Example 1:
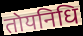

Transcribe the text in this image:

तोयनिधि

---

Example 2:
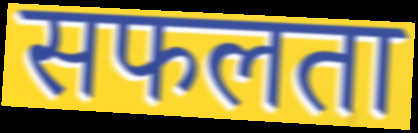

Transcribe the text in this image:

सफलता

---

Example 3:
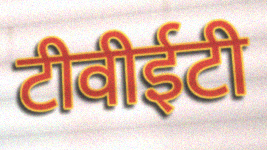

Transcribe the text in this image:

टीवीईटी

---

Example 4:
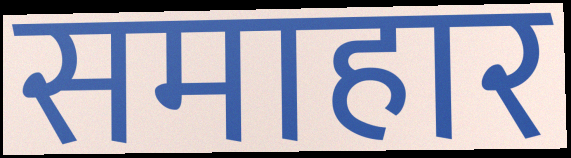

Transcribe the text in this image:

समाहार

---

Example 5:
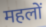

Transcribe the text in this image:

महलों